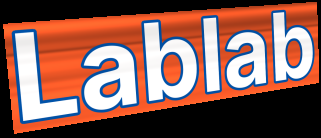
Lablab